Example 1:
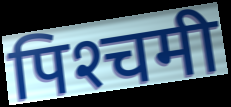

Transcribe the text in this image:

पिश्चमी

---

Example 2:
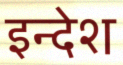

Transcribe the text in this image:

इन्देश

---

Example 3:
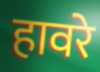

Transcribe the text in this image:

हावरे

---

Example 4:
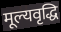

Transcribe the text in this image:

मूल्यवृद्धि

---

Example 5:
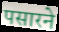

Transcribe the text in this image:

पसारने